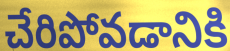
చేరిపోవడానికి